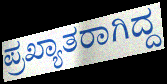
ಪ್ರಖ್ಯಾತರಾಗಿದ್ದ